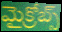
మైక్రోబ్స్